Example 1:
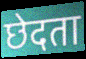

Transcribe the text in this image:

छेदता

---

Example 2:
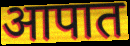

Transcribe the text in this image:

आपात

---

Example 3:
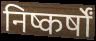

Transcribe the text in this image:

निष्कर्षों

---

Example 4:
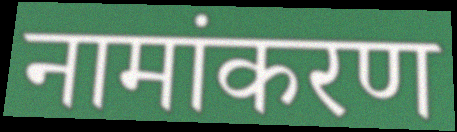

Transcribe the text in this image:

नामांकरण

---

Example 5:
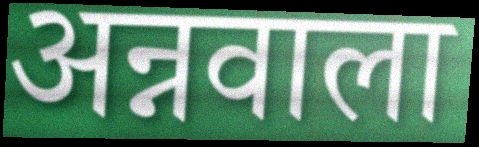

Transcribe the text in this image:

अन्नवाला